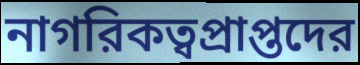
নাগরিকত্বপ্রাপ্তদের